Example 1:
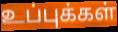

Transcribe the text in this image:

உப்புக்கள்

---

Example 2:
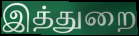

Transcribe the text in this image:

இத்துறை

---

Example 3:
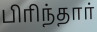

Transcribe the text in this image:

பிரிந்தார்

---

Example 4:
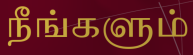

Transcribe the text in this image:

நீங்களும்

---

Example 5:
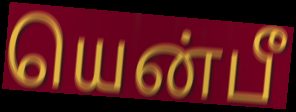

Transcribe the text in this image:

யென்பீ